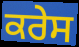
ਕਰੇਸ